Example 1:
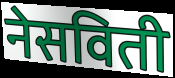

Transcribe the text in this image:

नेसविती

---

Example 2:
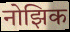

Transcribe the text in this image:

नोझिक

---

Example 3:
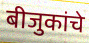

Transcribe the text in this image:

बीजुकांचे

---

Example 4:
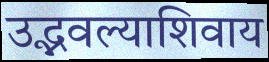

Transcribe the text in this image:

उद्भवल्याशिवाय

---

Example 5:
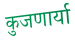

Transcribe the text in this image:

कुजणार्या